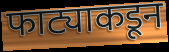
फाट्याकडून